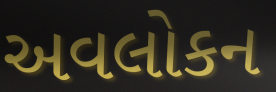
અવલોકન